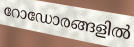
റോഡോരങ്ങളിൽ